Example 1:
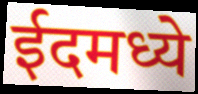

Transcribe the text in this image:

ईदमध्ये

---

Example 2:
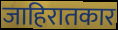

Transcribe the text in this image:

जाहिरातकार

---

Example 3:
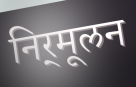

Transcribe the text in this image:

निर्मूलन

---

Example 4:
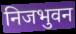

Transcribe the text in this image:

निजभुवन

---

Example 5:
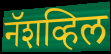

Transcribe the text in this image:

नॅशव्हिल